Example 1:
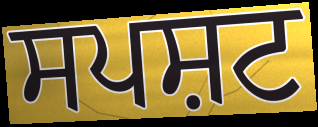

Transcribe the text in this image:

ਸਪਸ਼ਟ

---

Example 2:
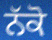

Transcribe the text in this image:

ਨੱਕੋ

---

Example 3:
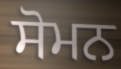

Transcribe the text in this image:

ਸੋਮਨ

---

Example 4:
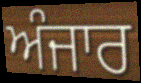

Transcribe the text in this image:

ਅੰਜਾਰ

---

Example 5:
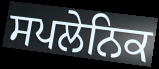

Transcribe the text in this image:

ਸਪਲੇਨਿਕ